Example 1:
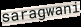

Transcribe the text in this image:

saragwani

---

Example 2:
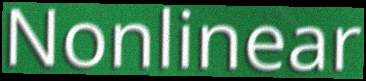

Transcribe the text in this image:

Nonlinear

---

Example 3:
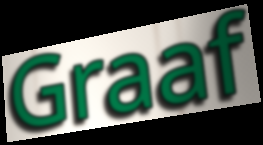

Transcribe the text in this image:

Graaf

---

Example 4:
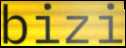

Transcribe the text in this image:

bizi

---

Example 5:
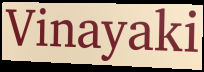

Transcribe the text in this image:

Vinayaki